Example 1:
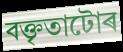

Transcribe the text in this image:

বক্তৃতাটোৰ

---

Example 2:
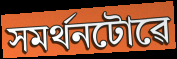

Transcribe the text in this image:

সমৰ্থনটোৱে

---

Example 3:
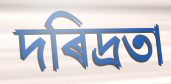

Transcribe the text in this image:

দৰিদ্ৰতা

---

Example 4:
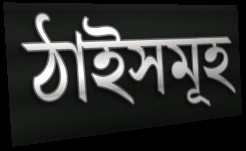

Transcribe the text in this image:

ঠাইসমূহ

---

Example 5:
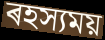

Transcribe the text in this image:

ৰহস্যময়